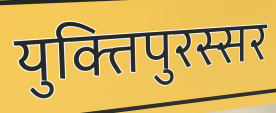
युक्तिपुरस्सर